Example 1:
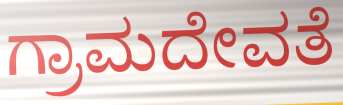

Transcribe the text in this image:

ಗ್ರಾಮದೇವತೆ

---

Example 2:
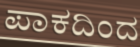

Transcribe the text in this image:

ಪಾಕದಿಂದ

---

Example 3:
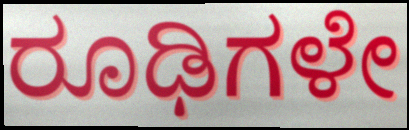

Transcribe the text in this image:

ರೂಢಿಗಳೇ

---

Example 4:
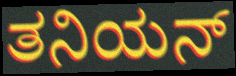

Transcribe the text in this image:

ತನಿಯನ್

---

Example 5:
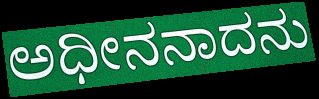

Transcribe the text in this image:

ಅಧೀನನಾದನು